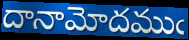
దానామోదముఁ